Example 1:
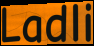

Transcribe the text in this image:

Ladli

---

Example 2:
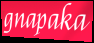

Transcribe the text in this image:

gnapaka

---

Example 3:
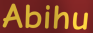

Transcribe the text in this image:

Abihu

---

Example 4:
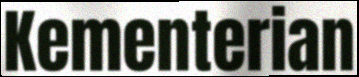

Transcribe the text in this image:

Kementerian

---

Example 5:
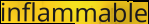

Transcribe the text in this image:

inflammable